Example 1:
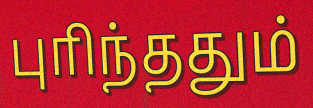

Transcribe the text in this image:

புரிந்ததும்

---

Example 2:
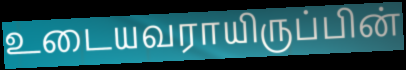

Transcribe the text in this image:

உடையவராயிருப்பின்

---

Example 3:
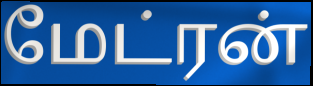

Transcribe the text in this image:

மேட்ரன்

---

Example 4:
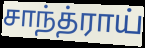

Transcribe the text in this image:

சாந்த்ராய்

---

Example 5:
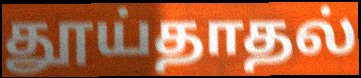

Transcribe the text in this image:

தூய்தாதல்